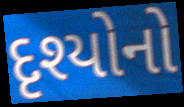
દૃશ્યોનો